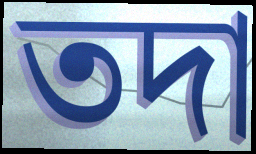
তদা